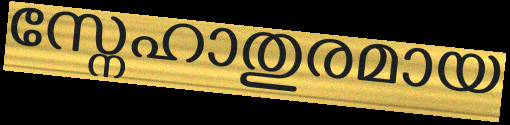
സ്നേഹാതുരമായ